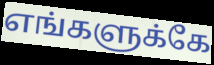
எங்களுக்கே